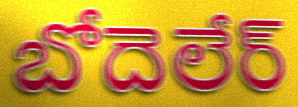
బోదెలేర్